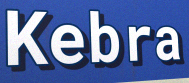
Kebra